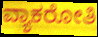
ವ್ಯಾಕರೋತಿ